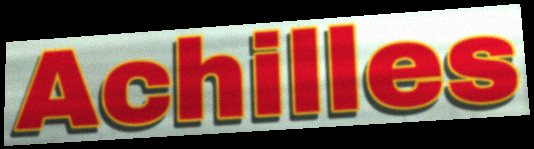
Achilles